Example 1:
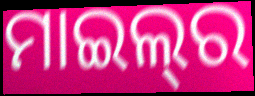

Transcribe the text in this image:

ମାଇଲ୍‍ର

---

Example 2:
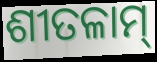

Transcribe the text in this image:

ଶୀତଳାମ୍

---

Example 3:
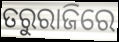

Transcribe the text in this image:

ତରୁରାଜିରେ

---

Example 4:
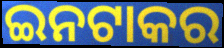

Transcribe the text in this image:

ଇନଟାକର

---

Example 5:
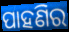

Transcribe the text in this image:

ପାହଣିର